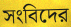
সংবিদের